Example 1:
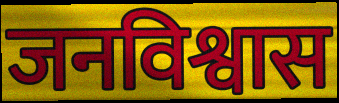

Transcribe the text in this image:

जनविश्वास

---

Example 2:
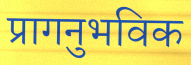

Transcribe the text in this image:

प्रागनुभविक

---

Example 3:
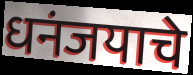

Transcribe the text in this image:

धनंजयाचे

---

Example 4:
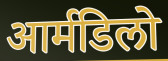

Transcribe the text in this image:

आर्मडिलो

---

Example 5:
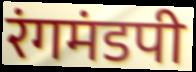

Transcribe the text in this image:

रंगमंडपी